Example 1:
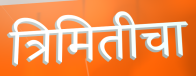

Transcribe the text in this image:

त्रिमितीचा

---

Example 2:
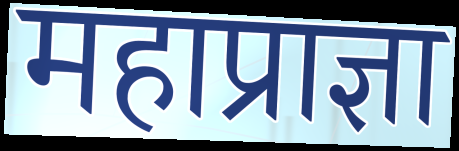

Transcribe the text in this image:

महाप्राज्ञा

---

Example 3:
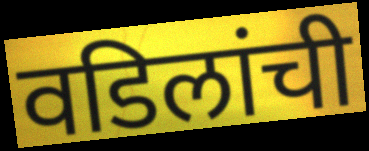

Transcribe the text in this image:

वडिलांची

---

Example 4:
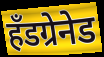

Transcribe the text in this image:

हॅंडग्रेनेड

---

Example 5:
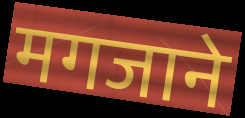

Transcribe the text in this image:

मगजाने